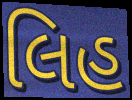
લિહ